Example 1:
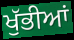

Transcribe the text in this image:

ਖੁੱਭੀਆਂ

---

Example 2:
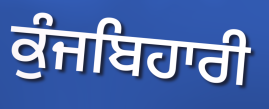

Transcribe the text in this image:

ਕੁੰਜਬਿਹਾਰੀ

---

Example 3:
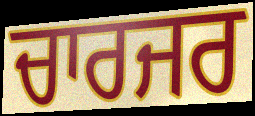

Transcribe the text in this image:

ਚਾਰਜਰ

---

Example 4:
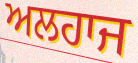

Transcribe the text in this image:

ਅਲਹਾਜ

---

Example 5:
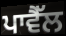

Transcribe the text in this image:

ਪਾਵੈੱਲ